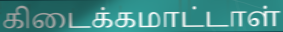
கிடைக்கமாட்டாள்